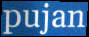
pujan